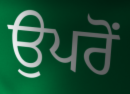
ਉਪਰੋਂ